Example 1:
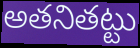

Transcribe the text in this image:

అతనితట్టు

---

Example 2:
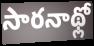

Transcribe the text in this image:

సారనాథ్లో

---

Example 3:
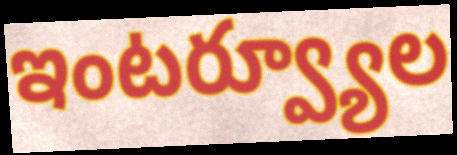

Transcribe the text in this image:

ఇంటర్వ్యూల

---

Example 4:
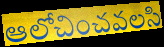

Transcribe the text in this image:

ఆలోచించవలసి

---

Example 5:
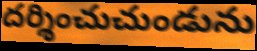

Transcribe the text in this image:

దర్శించుచుండును